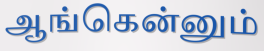
ஆங்கென்னும்